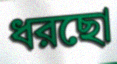
ধরছো